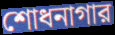
শোধনাগার